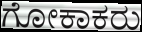
ಗೋಕಾಕರು